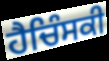
ਹੈਚਿੰਸਕੀ